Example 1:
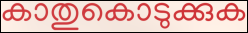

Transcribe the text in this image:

കാതുകൊടുക്കുക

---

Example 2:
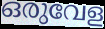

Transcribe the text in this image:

ഒരുവേള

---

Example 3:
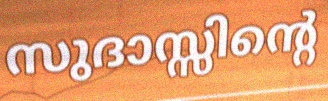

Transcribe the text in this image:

സുദാസ്സിന്റെ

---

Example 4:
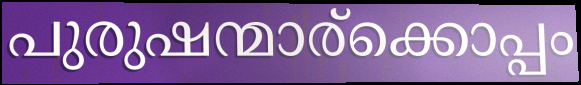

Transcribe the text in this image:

പുരുഷന്മാര്ക്കൊപ്പം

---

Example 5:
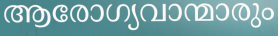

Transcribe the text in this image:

ആരോഗ്യവാന്മാരും